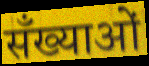
सँख्याओं